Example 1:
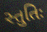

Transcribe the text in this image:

સ્તુતિઃ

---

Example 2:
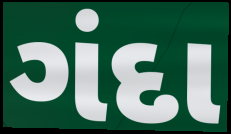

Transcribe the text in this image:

ગંદા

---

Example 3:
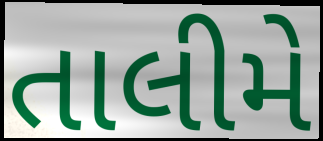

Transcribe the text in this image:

તાલીમે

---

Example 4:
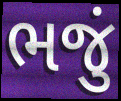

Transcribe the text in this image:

ભજું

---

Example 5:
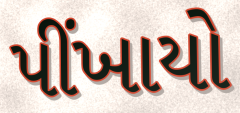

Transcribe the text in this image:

પીંખાયો